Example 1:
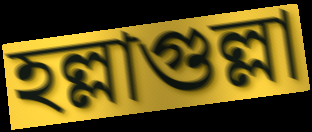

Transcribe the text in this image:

হল্লাগুল্লা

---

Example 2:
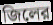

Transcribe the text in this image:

জিলের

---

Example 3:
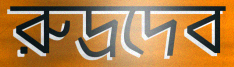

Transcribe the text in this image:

রুদ্রদেব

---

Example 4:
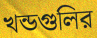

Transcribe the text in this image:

খন্ডগুলির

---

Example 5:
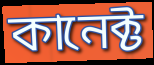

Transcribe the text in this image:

কানেক্ট